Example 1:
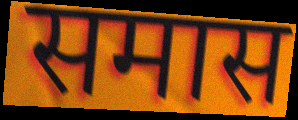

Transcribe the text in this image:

समास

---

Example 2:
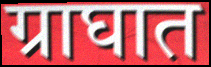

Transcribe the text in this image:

ग्राघात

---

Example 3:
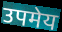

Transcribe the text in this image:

उपमेय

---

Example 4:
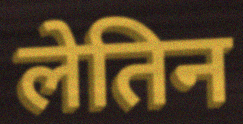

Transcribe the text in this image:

लेतिन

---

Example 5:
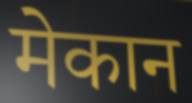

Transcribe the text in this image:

मेकान